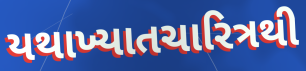
યથાખ્યાતચારિત્રથી